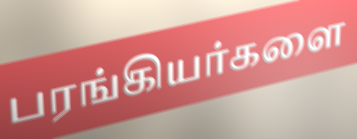
பரங்கியர்களை